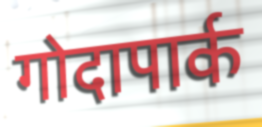
गोदापार्क